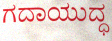
ಗದಾಯುದ್ಧ